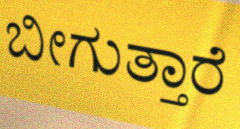
ಬೀಗುತ್ತಾರೆ